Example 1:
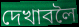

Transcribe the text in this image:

দেখাবলৈ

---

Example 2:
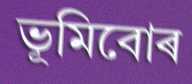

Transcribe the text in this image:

ভূমিবোৰ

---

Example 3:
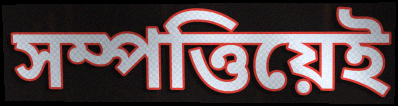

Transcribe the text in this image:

সম্পত্তিয়েই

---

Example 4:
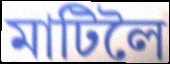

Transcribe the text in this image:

মাটিলৈ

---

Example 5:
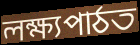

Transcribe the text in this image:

লক্ষ্যপাঠত